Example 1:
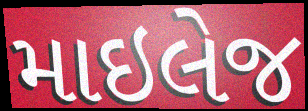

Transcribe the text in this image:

માઇલેજ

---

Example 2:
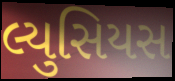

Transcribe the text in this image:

લ્યુસિયસ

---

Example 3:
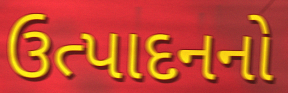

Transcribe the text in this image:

ઉત્પાદનનો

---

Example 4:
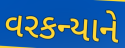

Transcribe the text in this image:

વરકન્યાને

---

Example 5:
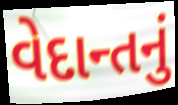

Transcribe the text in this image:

વેદાન્તનું